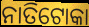
ନାତିଟୋକା